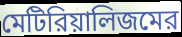
মেটিরিয়ালিজমের